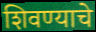
शिवण्याचे